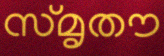
സ്മൃതൗ